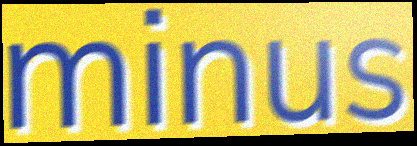
minus